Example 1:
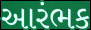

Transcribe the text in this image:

આરંભક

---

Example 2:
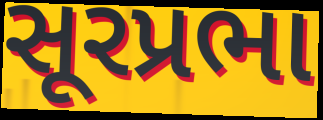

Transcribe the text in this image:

સૂરપ્રભા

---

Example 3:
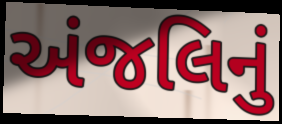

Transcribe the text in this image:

અંજલિનું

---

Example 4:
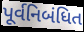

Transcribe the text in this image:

પૂર્વનિબંધિત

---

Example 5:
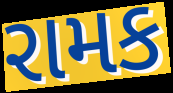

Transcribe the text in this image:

રામક